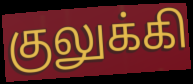
குலுக்கி